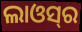
ଲାଓସ୍‌ର